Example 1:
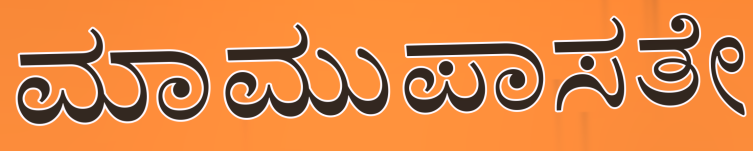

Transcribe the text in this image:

ಮಾಮುಪಾಸತೇ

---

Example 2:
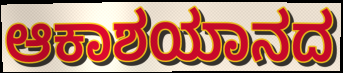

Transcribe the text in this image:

ಆಕಾಶಯಾನದ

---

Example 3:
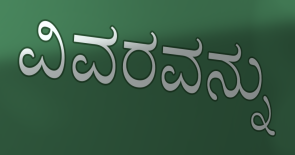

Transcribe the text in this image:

ವಿವರವನ್ನು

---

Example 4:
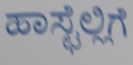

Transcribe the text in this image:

ಹಾಸ್ಟೆಲ್ಲಿಗೆ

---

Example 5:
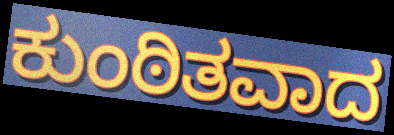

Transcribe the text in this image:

ಕುಂಠಿತವಾದ